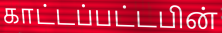
காட்டப்பட்டபின்